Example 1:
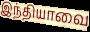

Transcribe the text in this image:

இந்தியாவை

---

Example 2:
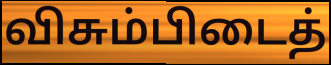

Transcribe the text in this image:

விசும்பிடைத்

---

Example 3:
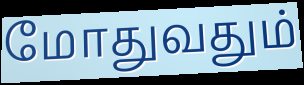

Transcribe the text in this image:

மோதுவதும்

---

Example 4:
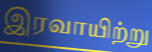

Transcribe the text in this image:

இரவாயிற்று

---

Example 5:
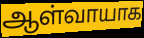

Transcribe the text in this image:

ஆள்வாயாக